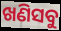
ଖଣିସବୁ